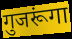
गुजरूंगा